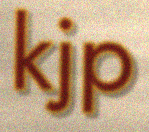
kjp